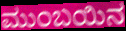
ಮುಂಬಯಿನ